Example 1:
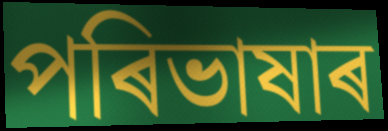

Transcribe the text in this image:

পৰিভাষাৰ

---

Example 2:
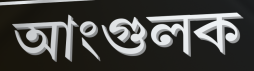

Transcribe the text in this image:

আংগুলক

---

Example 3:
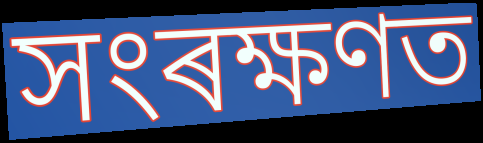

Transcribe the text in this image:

সংৰক্ষণত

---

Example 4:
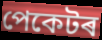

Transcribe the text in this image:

পেকেটৰ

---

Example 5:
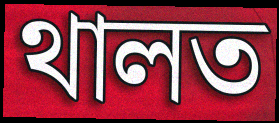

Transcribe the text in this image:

থালত